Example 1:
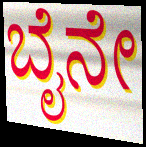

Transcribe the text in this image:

ಬೈನೇ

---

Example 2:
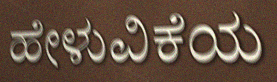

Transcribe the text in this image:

ಹೇಳುವಿಕೆಯ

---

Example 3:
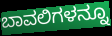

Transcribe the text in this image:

ಬಾವಲಿಗಳನ್ನೂ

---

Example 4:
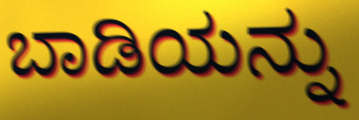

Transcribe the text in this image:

ಬಾಡಿಯನ್ನು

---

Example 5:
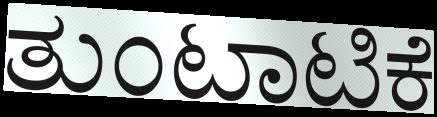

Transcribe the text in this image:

ತುಂಟಾಟಿಕೆ